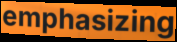
emphasizing